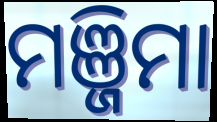
ମଞ୍ଜିମା